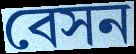
বেসন